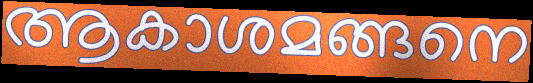
ആകാശമങ്ങനെ